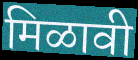
मिळावी